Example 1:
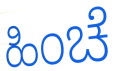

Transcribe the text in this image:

ಹಿಂಚೆ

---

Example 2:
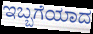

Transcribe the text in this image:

ಇಬ್ಬಗೆಯಾದ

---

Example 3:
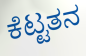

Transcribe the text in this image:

ಕೆಟ್ಟತನ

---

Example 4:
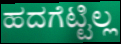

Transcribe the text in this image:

ಹದಗೆಟ್ಟಿಲ್ಲ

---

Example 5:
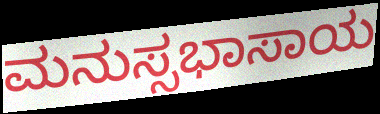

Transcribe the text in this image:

ಮನುಸ್ಸಭಾಸಾಯ